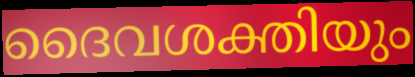
ദൈവശക്തിയും